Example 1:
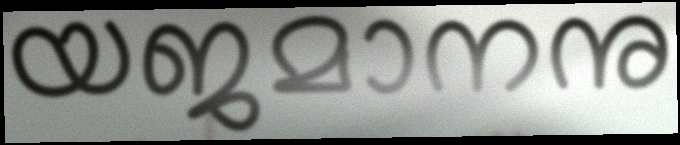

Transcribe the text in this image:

യജമാനനു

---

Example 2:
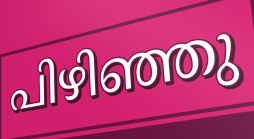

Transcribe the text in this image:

പിഴിഞ്ഞു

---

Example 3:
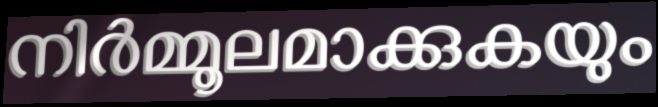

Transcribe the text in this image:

നിർമ്മൂലമാക്കുകയും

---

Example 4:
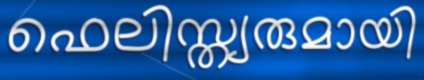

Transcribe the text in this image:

ഫെലിസ്ത്യരുമായി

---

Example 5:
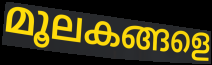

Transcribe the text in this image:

മൂലകങ്ങളെ